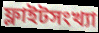
ফ্লাইটসংখ্যা